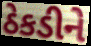
ઠેકડીને